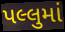
પલ્લુમાં